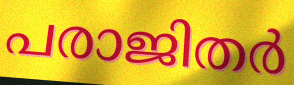
പരാജിതർ